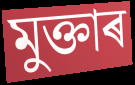
মুক্তাৰ